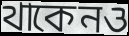
থাকেনও